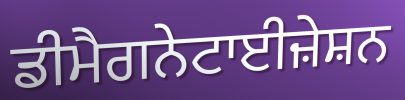
ਡੀਮੈਗਨੇਟਾਈਜ਼ੇਸ਼ਨ